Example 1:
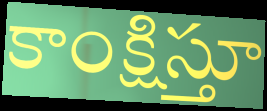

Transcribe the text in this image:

కాంక్షిస్తూ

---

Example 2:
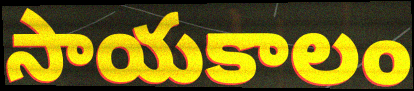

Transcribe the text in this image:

సాయకాలం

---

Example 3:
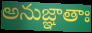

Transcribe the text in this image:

అనుజ్ఞాతాః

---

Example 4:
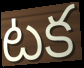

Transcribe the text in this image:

టక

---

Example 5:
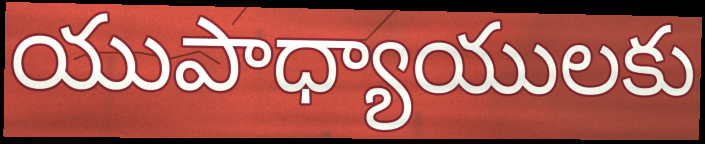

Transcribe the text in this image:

యుపాధ్యాయులకు